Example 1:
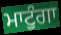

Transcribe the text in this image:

ਮਾਟੁੰਗਾ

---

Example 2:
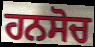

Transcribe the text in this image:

ਹਨਸੋਚ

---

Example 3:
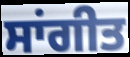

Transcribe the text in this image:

ਸਾਂਗੀਤ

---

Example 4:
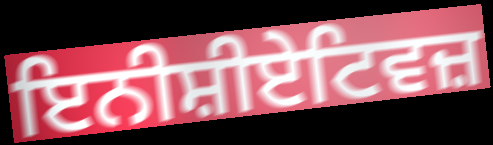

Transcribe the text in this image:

ਇਨੀਸ਼ੀਏਟਿਵਜ਼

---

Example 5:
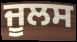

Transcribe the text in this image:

ਜੂਲਸ